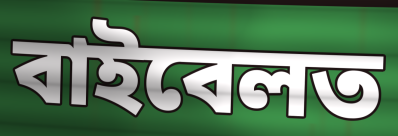
বাইবেলত